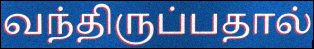
வந்திருப்பதால்